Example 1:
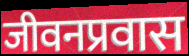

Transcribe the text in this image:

जीवनप्रवास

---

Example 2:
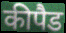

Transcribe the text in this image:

कीपैड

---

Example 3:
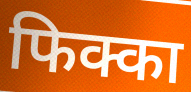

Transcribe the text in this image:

फिक्का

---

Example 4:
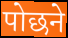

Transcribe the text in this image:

पोछने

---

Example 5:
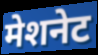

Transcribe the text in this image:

मेशनेट